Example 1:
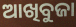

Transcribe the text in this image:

ଆଖିବୁଜା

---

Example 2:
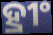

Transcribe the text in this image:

ହ୍ରୀଂ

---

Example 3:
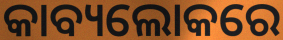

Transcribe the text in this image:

କାବ୍ୟଲୋକରେ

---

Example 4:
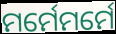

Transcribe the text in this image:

ମର୍ମେମର୍ମେ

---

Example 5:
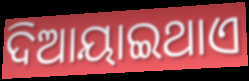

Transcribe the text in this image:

ଦିଆୟାଇଥାଏ